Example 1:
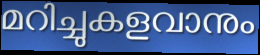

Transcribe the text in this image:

മറിച്ചുകളവാനും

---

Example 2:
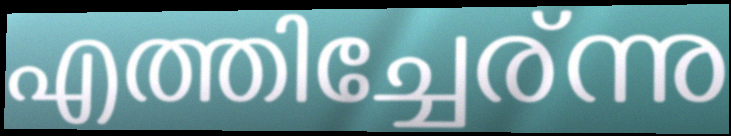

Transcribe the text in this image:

എത്തിച്ചേര്ന്നു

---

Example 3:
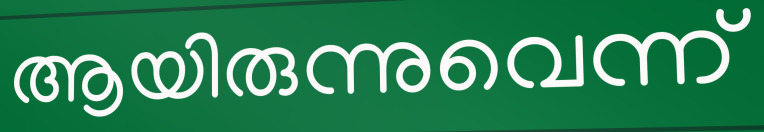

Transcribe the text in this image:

ആയിരുന്നുവെന്ന്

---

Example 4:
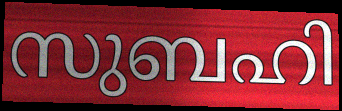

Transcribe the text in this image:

സുബഹി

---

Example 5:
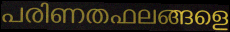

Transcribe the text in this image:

പരിണതഫലങ്ങളെ